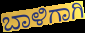
ಬಾಳಿಗಾಗಿ